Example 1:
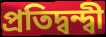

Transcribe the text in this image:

প্ৰতিদ্বন্দ্বী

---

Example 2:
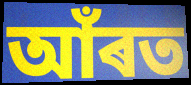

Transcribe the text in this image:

আঁৰত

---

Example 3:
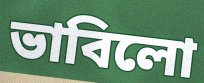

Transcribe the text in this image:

ভাবিলো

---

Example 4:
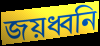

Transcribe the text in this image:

জয়ধ্বনি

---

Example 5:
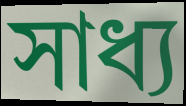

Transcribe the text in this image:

সাধ্য